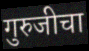
गुरुजीचा